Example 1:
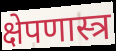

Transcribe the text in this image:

क्षेपणास्त्र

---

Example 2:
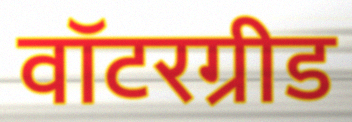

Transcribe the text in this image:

वॉटरग्रीड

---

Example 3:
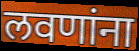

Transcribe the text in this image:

लवणांना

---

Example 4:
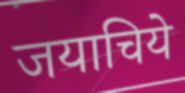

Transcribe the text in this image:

जयाचिये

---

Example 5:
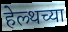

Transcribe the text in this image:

हेल्थच्या